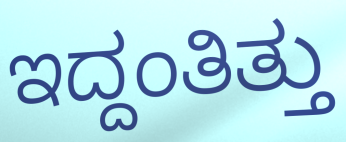
ಇದ್ದಂತಿತ್ತು